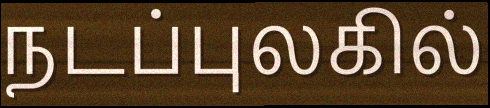
நடப்புலகில்